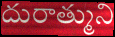
దురాత్ముని